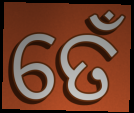
ତେଁ